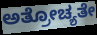
ಅತ್ರೋಚ್ಯತೇ